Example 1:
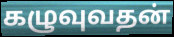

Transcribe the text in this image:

கழுவுவதன்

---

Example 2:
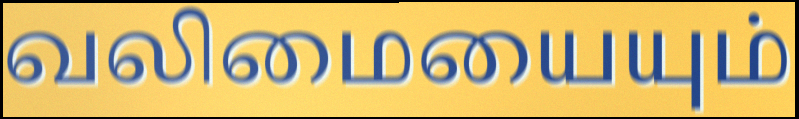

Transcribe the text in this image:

வலிமையையும்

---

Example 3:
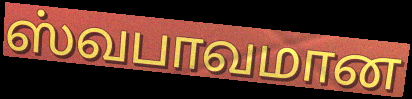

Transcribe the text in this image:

ஸ்வபாவமான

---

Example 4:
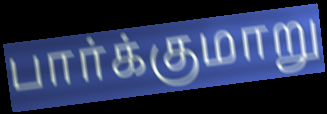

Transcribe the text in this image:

பார்க்குமாறு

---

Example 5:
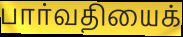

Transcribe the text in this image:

பார்வதியைக்